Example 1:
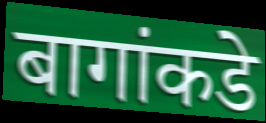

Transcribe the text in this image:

बागांकडे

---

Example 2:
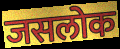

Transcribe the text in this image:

जसलोक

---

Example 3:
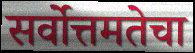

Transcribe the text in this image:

सर्वोत्तमतेचा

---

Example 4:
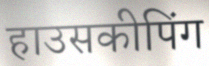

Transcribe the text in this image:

हाउसकीपिंग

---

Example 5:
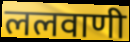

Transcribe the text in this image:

ललवाणी